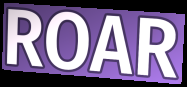
ROAR